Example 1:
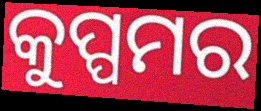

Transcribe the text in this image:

କୁପ୍ପମର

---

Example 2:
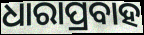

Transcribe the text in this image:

ଧାରାପ୍ରବାହ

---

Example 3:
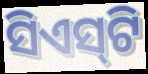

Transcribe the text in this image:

ସିଏସ୍‌ଟି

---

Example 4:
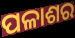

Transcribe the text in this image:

ପଳାଶର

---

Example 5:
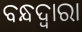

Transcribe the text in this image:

ବନ୍ଧଦ୍ବାରା